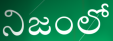
నిజంలో